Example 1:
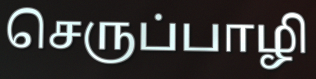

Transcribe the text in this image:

செருப்பாழி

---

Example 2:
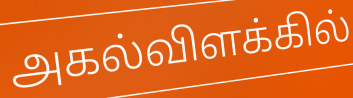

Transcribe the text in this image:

அகல்விளக்கில்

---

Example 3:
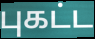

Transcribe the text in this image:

புகட்ட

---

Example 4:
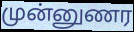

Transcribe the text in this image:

முன்னுணர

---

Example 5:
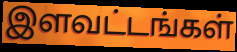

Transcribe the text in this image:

இளவட்டங்கள்